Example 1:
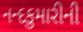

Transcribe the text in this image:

નન્દકુમારીની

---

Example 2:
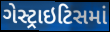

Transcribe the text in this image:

ગેસ્ટ્રાઇટિસમાં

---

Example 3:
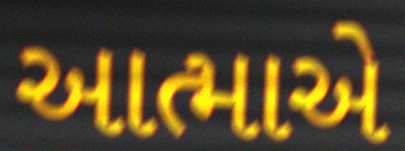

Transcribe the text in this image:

આત્માએ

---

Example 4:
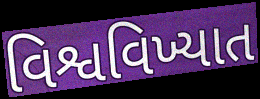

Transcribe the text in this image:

વિશ્વવિખ્યાત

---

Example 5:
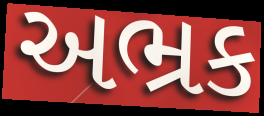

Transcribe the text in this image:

અભ્રક